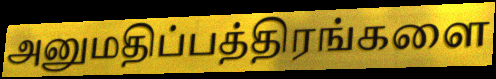
அனுமதிப்பத்திரங்களை